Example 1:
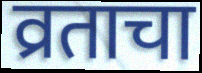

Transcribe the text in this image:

व्रताचा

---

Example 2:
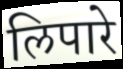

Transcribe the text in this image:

लिपारे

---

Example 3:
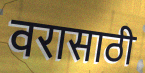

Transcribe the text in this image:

वरासाठी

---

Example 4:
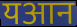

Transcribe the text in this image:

यआन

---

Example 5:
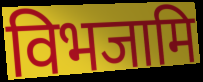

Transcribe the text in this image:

विभजामि